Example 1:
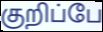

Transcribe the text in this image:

குறிப்பே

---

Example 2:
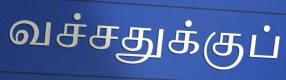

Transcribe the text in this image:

வச்சதுக்குப்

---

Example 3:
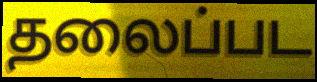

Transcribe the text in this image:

தலைப்பட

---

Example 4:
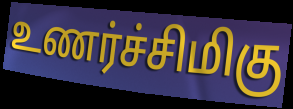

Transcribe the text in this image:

உணர்ச்சிமிகு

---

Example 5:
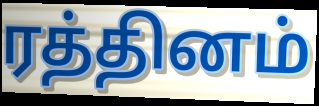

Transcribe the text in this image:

ரத்தினம்